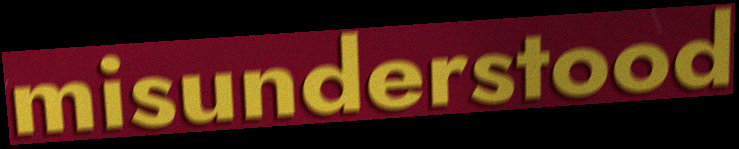
misunderstood